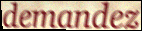
demandez